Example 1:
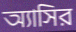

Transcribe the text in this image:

অ্যাসির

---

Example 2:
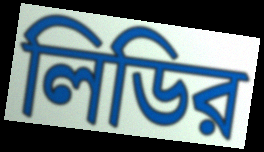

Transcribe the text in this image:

লিডির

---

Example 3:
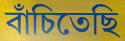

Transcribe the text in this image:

বাঁচিতেছি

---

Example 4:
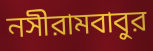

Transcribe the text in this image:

নসীরামবাবুর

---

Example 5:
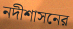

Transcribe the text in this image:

নদীশাসনের